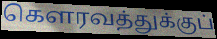
கௌரவத்துக்குப்